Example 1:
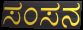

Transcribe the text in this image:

ಸಂಸನ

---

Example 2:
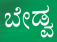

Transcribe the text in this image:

ಬೇಡ್ವ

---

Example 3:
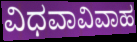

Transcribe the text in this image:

ವಿಧವಾವಿವಾಹ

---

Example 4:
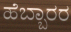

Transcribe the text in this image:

ಹೆಬ್ಬಾರರ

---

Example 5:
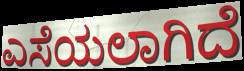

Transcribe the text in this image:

ಎಸೆಯಲಾಗಿದೆ